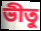
ভীতু